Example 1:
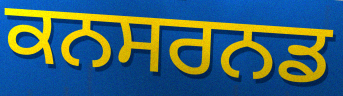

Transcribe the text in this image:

ਕਨਸਰਨਡ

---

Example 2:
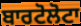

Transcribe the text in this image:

ਬਾਰਟੋਲੋਟਾ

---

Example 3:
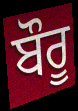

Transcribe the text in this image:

ਬੌਰੂ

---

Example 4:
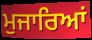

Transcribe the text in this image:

ਮੁਜਾਰਿਆਂ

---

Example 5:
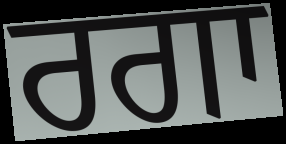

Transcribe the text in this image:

ਰਗਾ